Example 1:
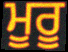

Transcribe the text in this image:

ਮੂਰੂ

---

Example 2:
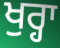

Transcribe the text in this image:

ਖੁਰ੍ਹਾ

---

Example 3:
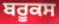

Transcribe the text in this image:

ਬਰੂਕਸ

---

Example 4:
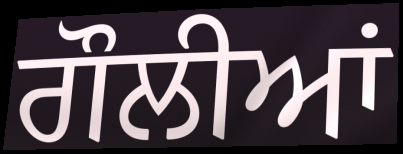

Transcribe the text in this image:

ਗੌਲੀਆਂ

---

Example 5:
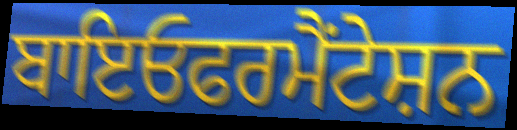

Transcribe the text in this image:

ਬਾਇਓਫਰਮੈਂਟੇਸ਼ਨ